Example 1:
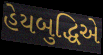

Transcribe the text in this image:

હેયબુદ્ધિએ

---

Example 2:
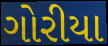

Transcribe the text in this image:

ગોરીયા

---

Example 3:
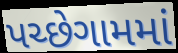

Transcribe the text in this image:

પચ્છેગામમાં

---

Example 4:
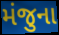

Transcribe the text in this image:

મંજુના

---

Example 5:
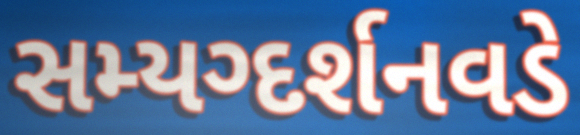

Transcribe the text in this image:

સમ્યગ્દર્શનવડે